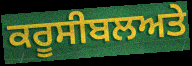
ਕਰੂਸੀਬਲਅਤੇ